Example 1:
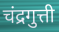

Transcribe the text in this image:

चंद्रगुत्ती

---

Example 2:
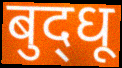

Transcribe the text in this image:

बुद्धू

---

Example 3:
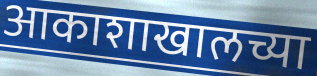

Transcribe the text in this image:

आकाशाखालच्या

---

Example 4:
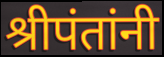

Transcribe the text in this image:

श्रीपंतांनी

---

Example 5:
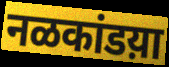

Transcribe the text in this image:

नळकांडय़ा